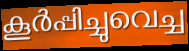
കൂർപ്പിച്ചുവെച്ച